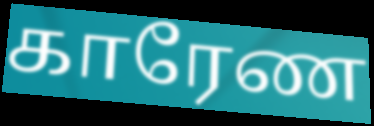
காரேண